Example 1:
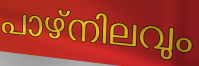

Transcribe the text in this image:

പാഴ്നിലവും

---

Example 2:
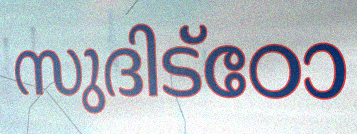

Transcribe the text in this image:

സുദിട്ഠോ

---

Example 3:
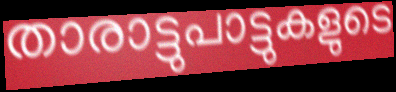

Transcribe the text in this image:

താരാട്ടുപാട്ടുകളുടെ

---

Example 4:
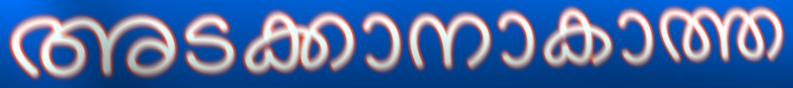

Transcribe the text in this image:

അടക്കാനാകാത്ത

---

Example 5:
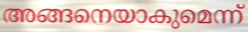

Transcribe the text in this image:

അങ്ങനെയാകുമെന്ന്